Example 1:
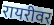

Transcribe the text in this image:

रायरीवर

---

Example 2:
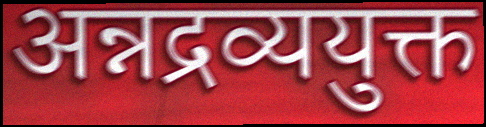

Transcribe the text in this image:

अन्नद्रव्ययुक्त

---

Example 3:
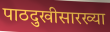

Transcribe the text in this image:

पाठदुखीसारख्या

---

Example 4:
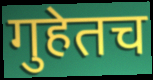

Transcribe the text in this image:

गुहेतच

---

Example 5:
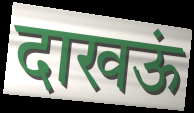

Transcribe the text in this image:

दाखऊं